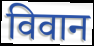
विवान